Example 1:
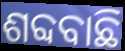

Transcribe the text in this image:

ଶବ୍ଦବାଛି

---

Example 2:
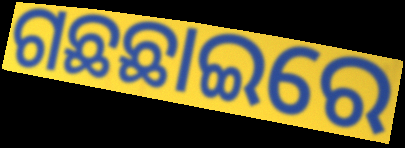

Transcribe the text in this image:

ଗଛଛାଇରେ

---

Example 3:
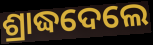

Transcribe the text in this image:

ଶ୍ରାଦ୍ଧଦେଲେ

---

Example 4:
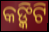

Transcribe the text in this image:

କଙ୍କିଟି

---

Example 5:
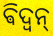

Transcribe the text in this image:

ଵିଦ୍ଵନ୍